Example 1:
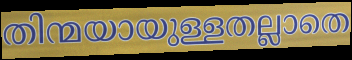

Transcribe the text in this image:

തിന്മയായുള്ളതല്ലാതെ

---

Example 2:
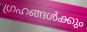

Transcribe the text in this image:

ഗ്രഹങ്ങൾക്കും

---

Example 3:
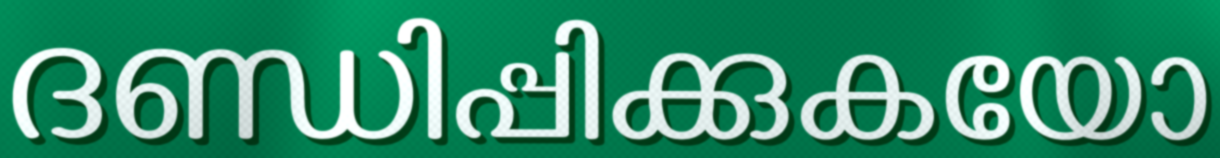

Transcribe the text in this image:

ദണ്ഡിപ്പിക്കുകയോ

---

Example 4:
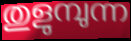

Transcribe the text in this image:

തുളുമ്പുന്ന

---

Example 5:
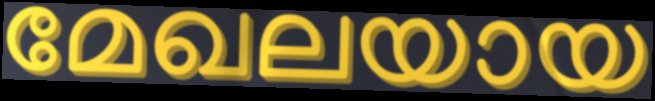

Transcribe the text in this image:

മേഖലയായ